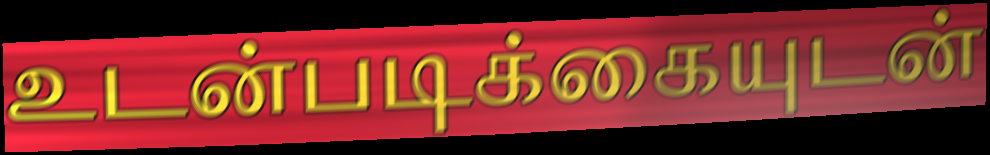
உடன்படிக்கையுடன்